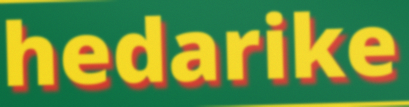
hedarike